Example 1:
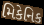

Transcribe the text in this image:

મિકેનિક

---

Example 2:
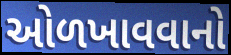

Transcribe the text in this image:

ઓળખાવવાનો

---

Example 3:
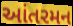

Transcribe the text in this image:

આંતરમન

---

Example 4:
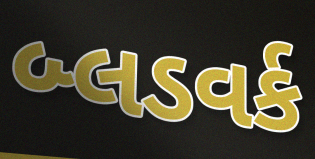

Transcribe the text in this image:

બ્લડવર્ક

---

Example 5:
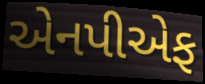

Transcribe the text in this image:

એનપીએફ